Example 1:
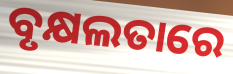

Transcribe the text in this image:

ବୃକ୍ଷଲତାରେ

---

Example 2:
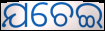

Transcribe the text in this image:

ଯଚେଇ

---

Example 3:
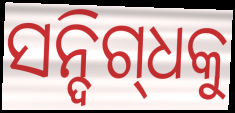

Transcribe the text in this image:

ସନ୍ଦିଗ୍‌ଧକୁ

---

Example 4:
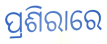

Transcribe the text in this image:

ପ୍ରଶିରାରେ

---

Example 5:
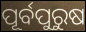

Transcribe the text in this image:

ପୂର୍ବପୁରୁଷ